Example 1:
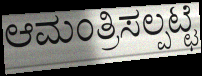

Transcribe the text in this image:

ಆಮಂತ್ರಿಸಲ್ಪಟ್ಟೆ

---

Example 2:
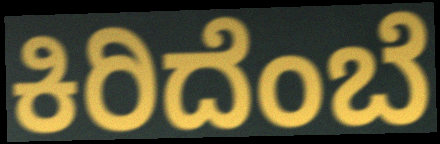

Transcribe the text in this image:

ಕಿರಿದೆಂಬೆ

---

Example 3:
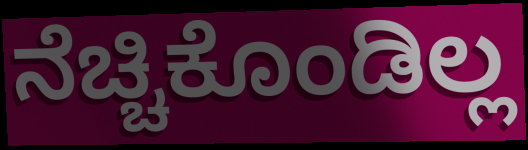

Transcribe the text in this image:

ನೆಚ್ಚಿಕೊಂಡಿಲ್ಲ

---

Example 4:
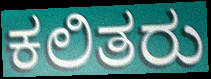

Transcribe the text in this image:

ಕಲಿತರು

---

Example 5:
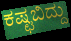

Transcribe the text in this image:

ಕಷ್ಟಬಿದ್ದು